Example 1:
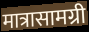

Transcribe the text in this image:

मात्रासामग्री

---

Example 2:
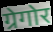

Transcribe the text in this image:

ग्रेगोर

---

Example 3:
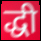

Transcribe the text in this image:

द्धी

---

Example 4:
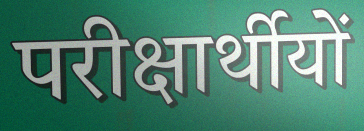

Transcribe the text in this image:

परीक्षार्थीयों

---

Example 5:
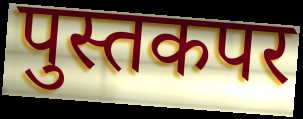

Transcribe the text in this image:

पुस्तकपर